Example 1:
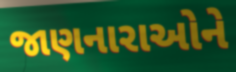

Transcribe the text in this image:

જાણનારાઓને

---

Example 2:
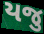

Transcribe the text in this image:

યજુ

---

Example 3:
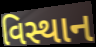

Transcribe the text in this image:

વિસ્થાન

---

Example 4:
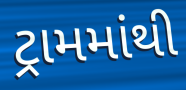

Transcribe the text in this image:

ટ્રામમાંથી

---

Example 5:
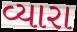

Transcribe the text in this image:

વ્યારા